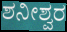
ಶನೀಶ್ವರ